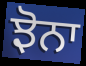
ਝੋਨਾ